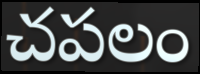
చపలం